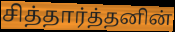
சித்தார்த்தனின்